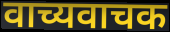
वाच्यवाचक